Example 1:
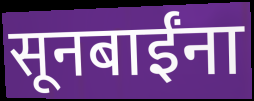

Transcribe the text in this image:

सूनबाईंना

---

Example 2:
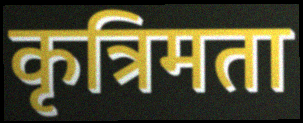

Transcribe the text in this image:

कृत्रिमता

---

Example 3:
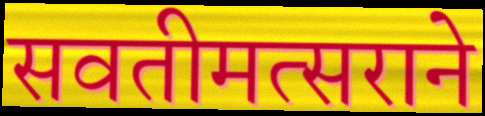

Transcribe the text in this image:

सवतीमत्सराने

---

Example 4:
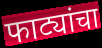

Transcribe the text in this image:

फाट्यांचा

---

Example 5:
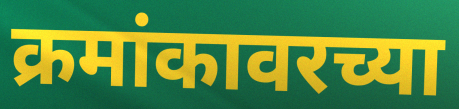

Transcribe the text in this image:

क्रमांकावरच्या